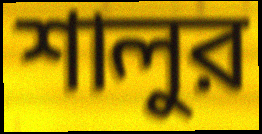
শালুর